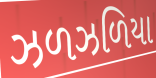
ઝળઝળિયા